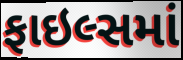
ફાઇલ્સમાં